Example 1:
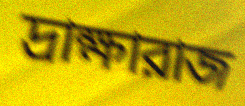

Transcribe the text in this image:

দ্রাক্ষারাজ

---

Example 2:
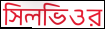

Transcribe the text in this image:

সিলভিওর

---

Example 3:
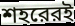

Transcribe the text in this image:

শহরেরই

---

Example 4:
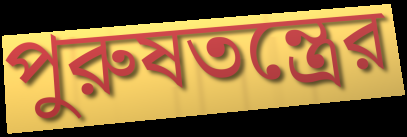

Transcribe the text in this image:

পুরুষতন্ত্রের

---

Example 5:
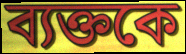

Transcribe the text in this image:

ব্যক্তকে